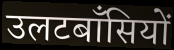
उलटबाँसियों